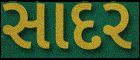
સાદર